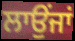
ਲਾਉਂਜਾਂ